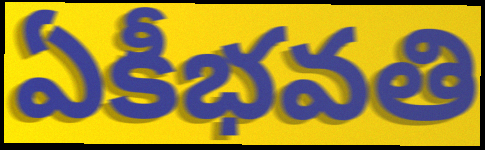
ఏకీభవతి